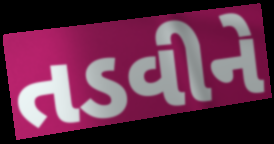
તડવીને